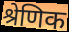
श्रेणिक